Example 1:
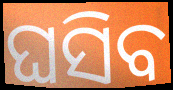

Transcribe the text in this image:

ଘସିବ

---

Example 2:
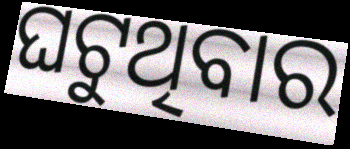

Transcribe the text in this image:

ଘଟୁଥିବାର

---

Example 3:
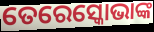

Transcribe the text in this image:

ତେରେସ୍କୋଭାଙ୍କ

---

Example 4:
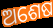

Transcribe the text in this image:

ଅଶେଷ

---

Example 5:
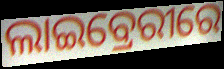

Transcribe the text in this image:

ଲାଇବ୍ରେରୀରେ